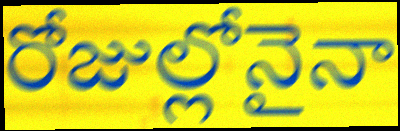
రోజుల్లోనైనా